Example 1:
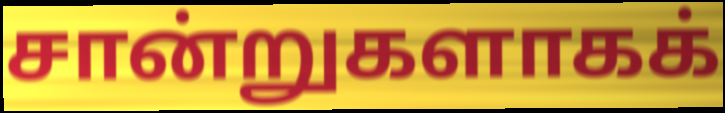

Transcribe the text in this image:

சான்றுகளாகக்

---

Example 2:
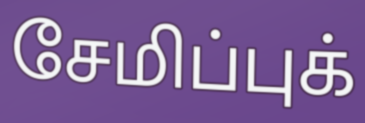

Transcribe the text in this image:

சேமிப்புக்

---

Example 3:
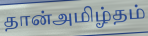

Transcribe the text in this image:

தான்அமிழ்தம்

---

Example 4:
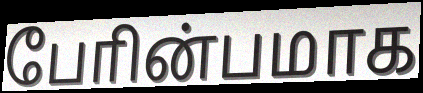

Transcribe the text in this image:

பேரின்பமாக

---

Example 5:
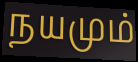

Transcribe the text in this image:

நயமும்